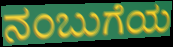
ನಂಬುಗೆಯ